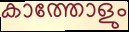
കാത്തോളും